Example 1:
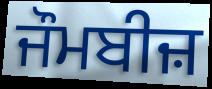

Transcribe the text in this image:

ਜੌਮਬੀਜ਼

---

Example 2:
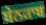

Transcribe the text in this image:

ਬੇਨਕਾਬ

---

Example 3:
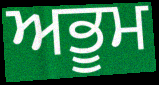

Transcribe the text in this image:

ਅਭੂਮ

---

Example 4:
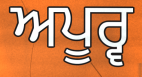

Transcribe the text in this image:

ਅਪੂਰ੍ਵ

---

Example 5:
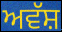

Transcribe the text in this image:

ਅਵੱਸ਼